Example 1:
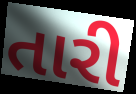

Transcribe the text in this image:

તારી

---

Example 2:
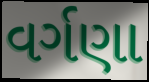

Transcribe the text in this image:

વર્ગણા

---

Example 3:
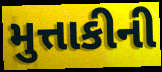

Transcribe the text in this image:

મુત્તાકીની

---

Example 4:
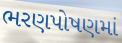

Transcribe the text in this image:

ભરણપોષણમાં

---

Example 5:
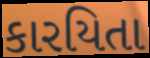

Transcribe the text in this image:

કારયિતા